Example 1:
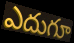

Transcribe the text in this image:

ఎదుగూ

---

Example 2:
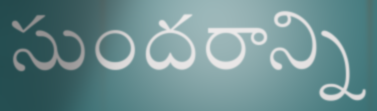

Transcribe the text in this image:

సుందరాన్ని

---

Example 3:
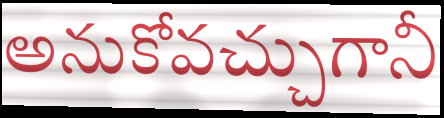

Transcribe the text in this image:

అనుకోవచ్చుగానీ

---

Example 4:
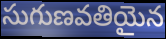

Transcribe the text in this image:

సుగుణవతియైన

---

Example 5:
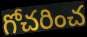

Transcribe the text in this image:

గోచరించ